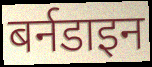
बर्नडाइन